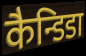
कैन्डिडा